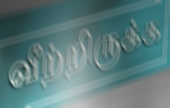
வீற்றிருக்க